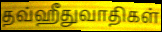
தவ்ஹீதுவாதிகள்